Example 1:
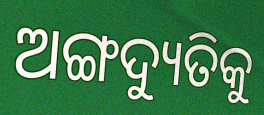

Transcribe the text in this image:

ଅଙ୍ଗଦ୍ୟୁତିକୁ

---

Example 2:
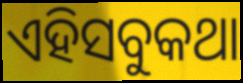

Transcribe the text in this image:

ଏହିସବୁକଥା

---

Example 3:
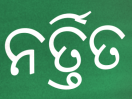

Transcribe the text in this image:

ନର୍ତ୍ତିତ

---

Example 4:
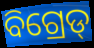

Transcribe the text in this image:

ବିଗ୍ରେଡ୍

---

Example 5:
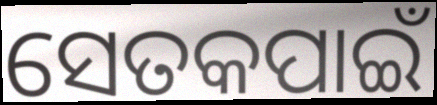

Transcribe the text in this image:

ସେତକପାଇଁ